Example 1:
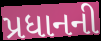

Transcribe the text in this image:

પ્રધાનની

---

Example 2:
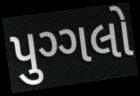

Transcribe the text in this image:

પુગ્ગલો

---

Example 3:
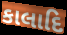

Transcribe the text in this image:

કાલાદિ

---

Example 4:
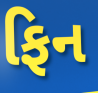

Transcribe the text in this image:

ફિન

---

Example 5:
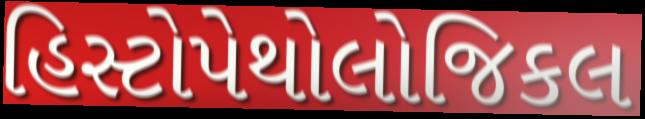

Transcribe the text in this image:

હિસ્ટોપેથોલોજિકલ